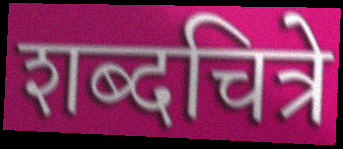
शब्दचित्रे